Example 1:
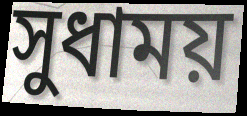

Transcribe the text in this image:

সুধাময়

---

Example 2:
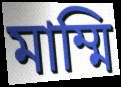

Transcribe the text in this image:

মাম্মি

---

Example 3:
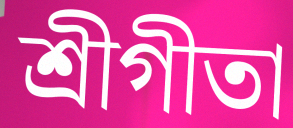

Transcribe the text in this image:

শ্রীগীতা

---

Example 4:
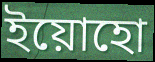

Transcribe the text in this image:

ইয়োহো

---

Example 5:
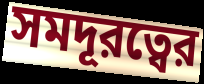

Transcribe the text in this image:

সমদূরত্বের